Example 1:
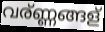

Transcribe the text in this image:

വര്ണ്ണങ്ങള്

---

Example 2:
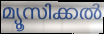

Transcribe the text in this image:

മ്യൂസിക്കൽ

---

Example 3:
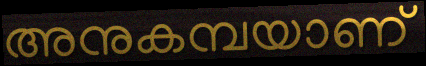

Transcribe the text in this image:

അനുകമ്പയാണ്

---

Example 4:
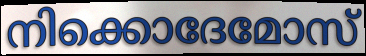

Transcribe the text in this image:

നിക്കൊദേമോസ്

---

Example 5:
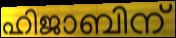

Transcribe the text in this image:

ഹിജാബിന്